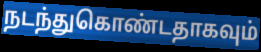
நடந்துகொண்டதாகவும்